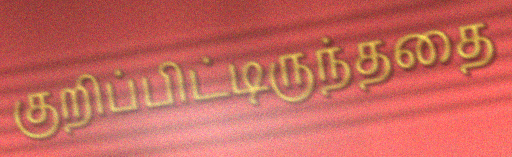
குறிப்பிட்டிருந்ததை